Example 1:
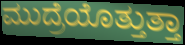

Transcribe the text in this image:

ಮುದ್ರೆಯೊತ್ತುತ್ತಾ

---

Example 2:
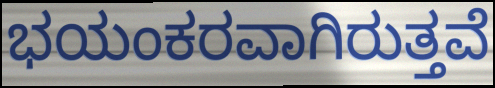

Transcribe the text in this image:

ಭಯಂಕರವಾಗಿರುತ್ತವೆ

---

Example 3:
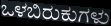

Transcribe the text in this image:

ಒಳಬಿರುಕುಗಳು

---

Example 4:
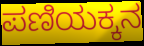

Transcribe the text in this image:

ಪಣಿಯಕ್ಕನ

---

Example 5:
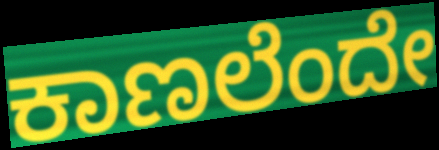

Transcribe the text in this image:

ಕಾಣಲೆಂದೇ